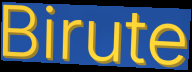
Birute